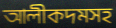
আলীকদমসহ